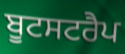
ਬੂਟਸਟਰੈਪ